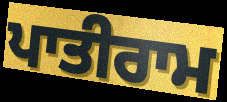
ਪਾਤੀਰਾਮ